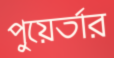
পুয়ের্তার